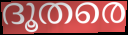
ദൂതരെ